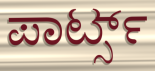
ಪಾರ್ಟ್ಸ್